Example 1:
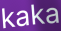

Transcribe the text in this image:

kaka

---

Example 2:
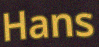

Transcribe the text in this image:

Hans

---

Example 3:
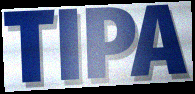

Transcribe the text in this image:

TIPA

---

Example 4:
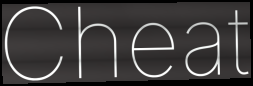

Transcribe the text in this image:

Cheat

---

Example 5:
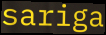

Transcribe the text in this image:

sariga